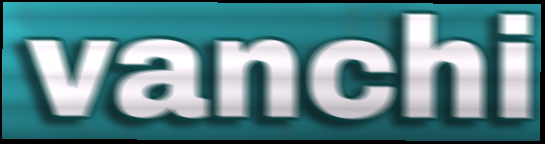
vanchi